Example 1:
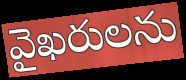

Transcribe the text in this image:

వైఖరులను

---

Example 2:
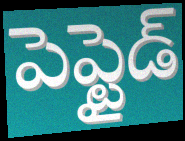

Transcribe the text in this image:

పెప్టైడ్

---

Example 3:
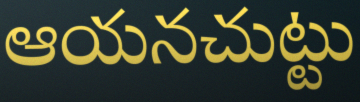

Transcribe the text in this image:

ఆయనచుట్టు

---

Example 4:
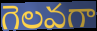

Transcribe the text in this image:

గెలవగా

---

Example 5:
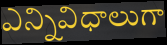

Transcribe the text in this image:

ఎన్నివిధాలుగా